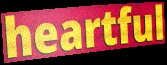
heartful